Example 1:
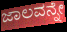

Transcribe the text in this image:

ಜಾಲವನ್ನೇ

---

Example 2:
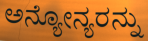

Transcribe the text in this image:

ಅನ್ಯೋನ್ಯರನ್ನು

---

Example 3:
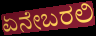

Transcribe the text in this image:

ಏನೇಬರಲಿ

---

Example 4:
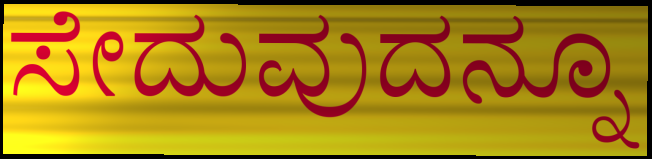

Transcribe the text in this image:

ಸೇದುವುದನ್ನೂ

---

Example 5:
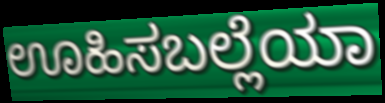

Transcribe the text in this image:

ಊಹಿಸಬಲ್ಲೆಯಾ